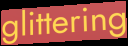
glittering